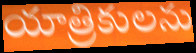
యాత్రికులను